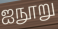
ஐநூறு